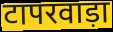
टापरवाड़ा